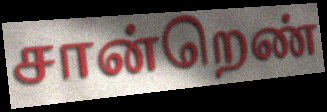
சான்றெண்